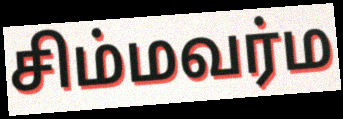
சிம்மவர்ம